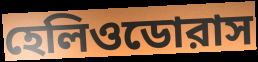
হেলিওডোরাস